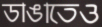
ডাঙাতেও